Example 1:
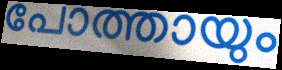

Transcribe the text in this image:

പോത്തായും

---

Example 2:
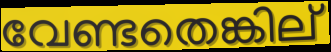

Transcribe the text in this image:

വേണ്ടതെങ്കില്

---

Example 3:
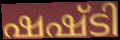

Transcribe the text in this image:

ഷഷ്ടി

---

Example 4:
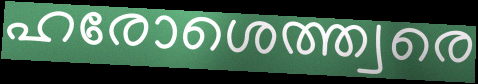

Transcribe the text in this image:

ഹരോശെത്ത്വരെ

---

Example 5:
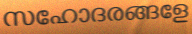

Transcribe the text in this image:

സഹോദരങ്ങളേ